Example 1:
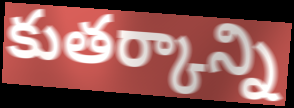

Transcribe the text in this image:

కుతర్కాన్ని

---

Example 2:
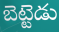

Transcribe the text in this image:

బెట్టెడు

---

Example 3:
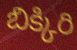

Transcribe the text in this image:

బిక్కిరి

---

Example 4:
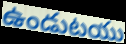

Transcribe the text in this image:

ఉండుటయు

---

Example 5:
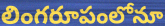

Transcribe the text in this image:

లింగరూపంలోనూ